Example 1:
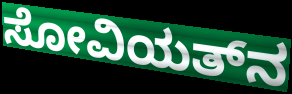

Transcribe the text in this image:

ಸೋವಿಯತ್‌ನ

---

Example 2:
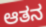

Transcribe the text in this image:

ಆತನ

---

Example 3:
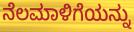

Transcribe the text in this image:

ನೆಲಮಾಳಿಗೆಯನ್ನು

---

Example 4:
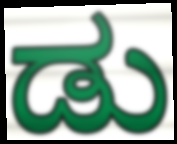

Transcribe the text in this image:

ಡು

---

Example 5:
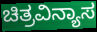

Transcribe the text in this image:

ಚಿತ್ರವಿನ್ಯಾಸ